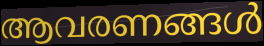
ആവരണങ്ങൾ